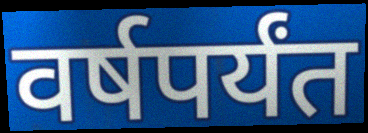
वर्षपर्यंत